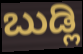
ಬುಡ್ಲಿ